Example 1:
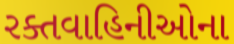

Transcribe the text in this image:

રક્તવાહિનીઓના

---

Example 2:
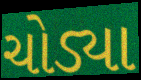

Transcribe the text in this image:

ચોડ્યા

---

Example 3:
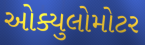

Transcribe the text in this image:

ઓક્યુલોમોટર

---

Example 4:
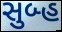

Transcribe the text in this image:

સુબ્હ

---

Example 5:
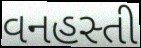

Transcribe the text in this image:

વનહસ્તી